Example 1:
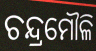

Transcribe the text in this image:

ଚନ୍ଦ୍ରମୌଳି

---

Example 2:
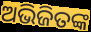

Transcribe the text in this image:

ଅଭିଜିତଙ୍କ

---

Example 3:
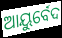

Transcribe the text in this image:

ଆୟୁର୍ବେଦ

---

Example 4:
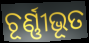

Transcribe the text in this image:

ଚୂର୍ଣ୍ଣୀଭୂତ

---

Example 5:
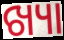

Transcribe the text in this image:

ଖ୍ୟା